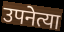
उपनेत्या